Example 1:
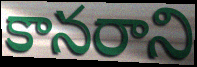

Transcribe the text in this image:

కానరాని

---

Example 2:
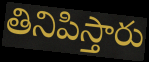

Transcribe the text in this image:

తినిపిస్తారు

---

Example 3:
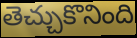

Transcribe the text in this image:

తెచ్చుకొనింది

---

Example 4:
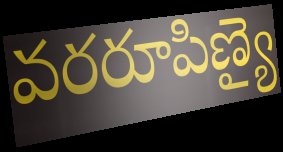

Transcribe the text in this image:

వరరూపిణ్యై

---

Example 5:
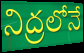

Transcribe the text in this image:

నిద్రలోనే